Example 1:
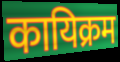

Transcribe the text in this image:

कायिक्रम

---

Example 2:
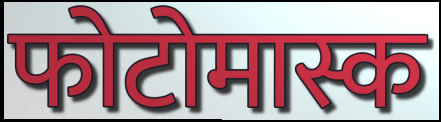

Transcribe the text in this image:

फोटोमास्क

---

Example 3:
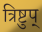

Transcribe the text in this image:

त्रिष्टुप्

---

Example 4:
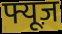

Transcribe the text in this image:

फ्यूज़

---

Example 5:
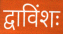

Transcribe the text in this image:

द्वाविंशः